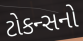
ટોકન્સનો